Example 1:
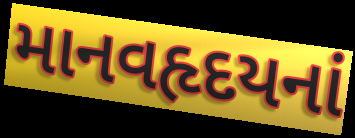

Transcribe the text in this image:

માનવહૃદયનાં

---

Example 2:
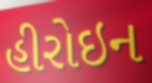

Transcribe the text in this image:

હીરોઇન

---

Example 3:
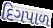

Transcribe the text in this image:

દિગપાળ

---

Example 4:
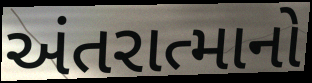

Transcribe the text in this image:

અંતરાત્માનો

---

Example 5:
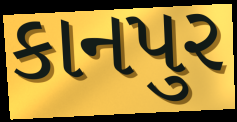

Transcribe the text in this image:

કાનપુર